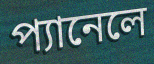
প্যানেলে